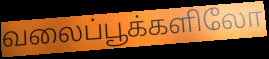
வலைப்பூக்களிலோ